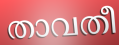
താവതീ